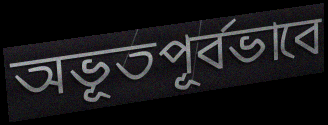
অভূতপূর্বভাবে